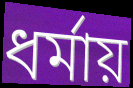
ধর্মায়